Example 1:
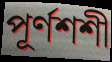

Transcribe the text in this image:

পূর্ণশশী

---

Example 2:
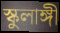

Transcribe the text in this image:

স্কুলাঙ্গী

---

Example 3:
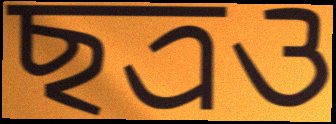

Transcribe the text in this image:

ছত্রও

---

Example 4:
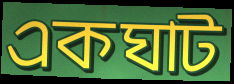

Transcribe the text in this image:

একঘাট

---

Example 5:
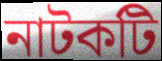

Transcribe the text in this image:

নাটকটি